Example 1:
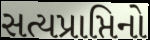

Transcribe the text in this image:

સત્યપ્રાપ્તિનો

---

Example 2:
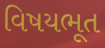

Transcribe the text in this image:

વિષયભૂત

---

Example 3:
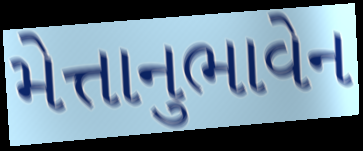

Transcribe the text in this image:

મેત્તાનુભાવેન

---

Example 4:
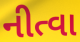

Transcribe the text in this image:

નીત્વા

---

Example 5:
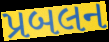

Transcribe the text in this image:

પ્રબલન